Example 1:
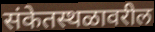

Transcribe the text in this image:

संकेतस्थळावरील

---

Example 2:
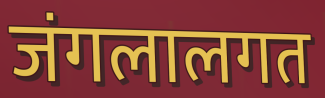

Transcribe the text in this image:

जंगलालगत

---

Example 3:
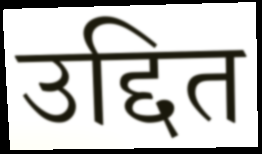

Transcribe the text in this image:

उद्दित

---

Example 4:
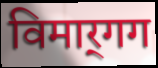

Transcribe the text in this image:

विमार्गग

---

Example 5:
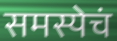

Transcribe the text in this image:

समस्येचं